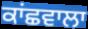
ਕਾਂਛਵਾਲਾ